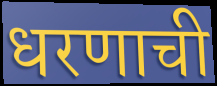
धरणाची